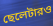
ছেলেটারও